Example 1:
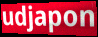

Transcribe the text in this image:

udjapon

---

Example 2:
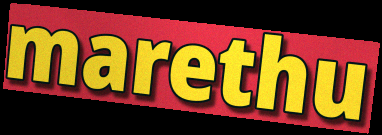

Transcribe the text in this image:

marethu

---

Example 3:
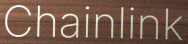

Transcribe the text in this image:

Chainlink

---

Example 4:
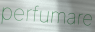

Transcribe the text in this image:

perfumare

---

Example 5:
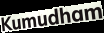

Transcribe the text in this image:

Kumudham